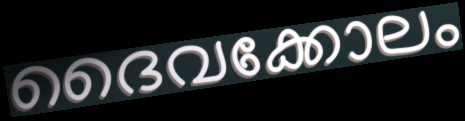
ദൈവക്കോലം